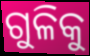
ଗୁଳିକୁ